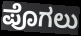
ಪೊಗಲು